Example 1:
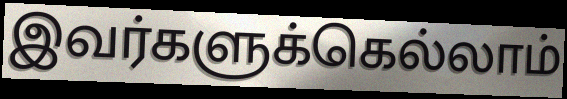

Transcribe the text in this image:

இவர்களுக்கெல்லாம்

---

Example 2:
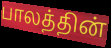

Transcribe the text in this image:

பாலத்தின்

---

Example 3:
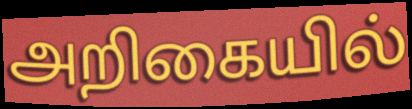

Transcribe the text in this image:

அறிகையில்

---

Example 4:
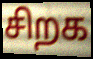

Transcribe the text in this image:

சிறக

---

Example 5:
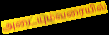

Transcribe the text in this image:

அடையும்வரையில்